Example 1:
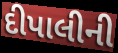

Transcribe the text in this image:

દીપાલીની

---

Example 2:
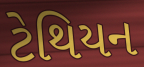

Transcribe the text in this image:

ટેથિયન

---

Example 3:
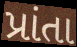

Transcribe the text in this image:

પ્રાંતા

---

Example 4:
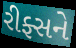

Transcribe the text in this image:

રીફ્સને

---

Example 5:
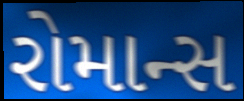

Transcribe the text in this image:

રોમાન્સ